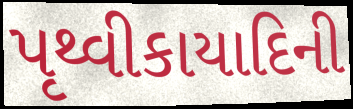
પૃથ્વીકાયાદિની